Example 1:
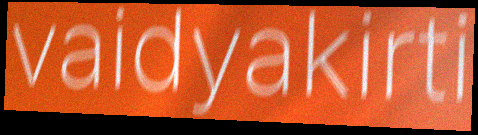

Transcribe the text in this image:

vaidyakirti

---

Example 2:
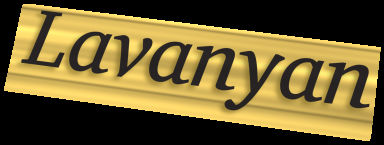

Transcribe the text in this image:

Lavanyan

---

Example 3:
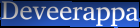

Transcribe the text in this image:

Deveerappa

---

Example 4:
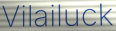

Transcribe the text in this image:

Vilailuck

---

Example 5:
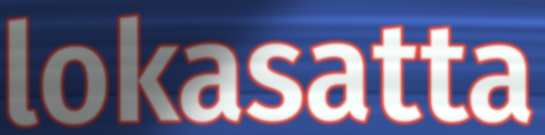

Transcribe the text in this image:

lokasatta